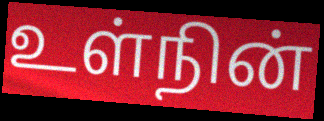
உள்நின்